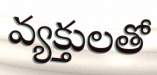
వ్యక్తులతో